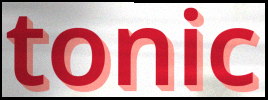
tonic